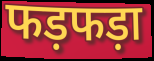
फड़फड़ा